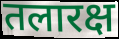
तलारक्ष